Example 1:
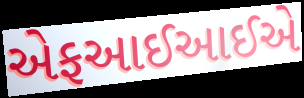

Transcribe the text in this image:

એફઆઈઆઈએ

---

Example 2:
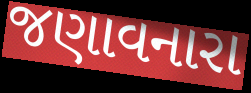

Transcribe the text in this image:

જણાવનારા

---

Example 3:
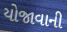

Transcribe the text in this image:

યોજાવાની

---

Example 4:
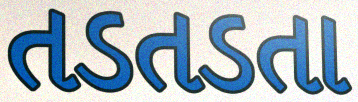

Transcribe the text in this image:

તડતડતા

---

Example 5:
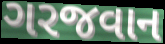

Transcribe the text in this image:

ગરજવાન